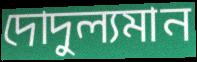
দোদুল্যমান